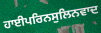
ਹਾਈਪਰਿਨਸੁਲਿਨਵਾਦ